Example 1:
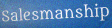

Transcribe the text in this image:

Salesmanship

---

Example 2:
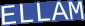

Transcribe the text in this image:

ELLAM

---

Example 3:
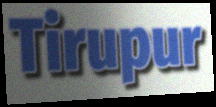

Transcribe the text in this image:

Tirupur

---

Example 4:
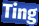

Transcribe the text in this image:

Ting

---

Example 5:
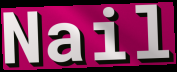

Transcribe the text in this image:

Nail